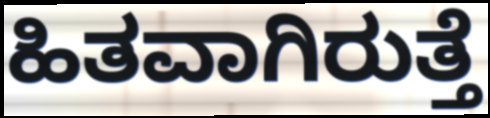
ಹಿತವಾಗಿರುತ್ತೆ